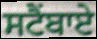
ਸਟੈਂਬਾਏ